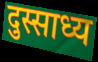
दुस्साध्य